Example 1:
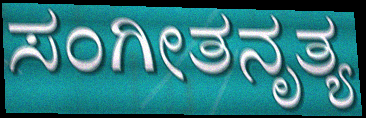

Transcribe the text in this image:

ಸಂಗೀತನೃತ್ಯ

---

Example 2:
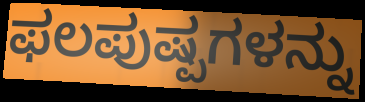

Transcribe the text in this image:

ಫಲಪುಷ್ಪಗಳನ್ನು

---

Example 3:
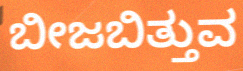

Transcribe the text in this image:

ಬೀಜಬಿತ್ತುವ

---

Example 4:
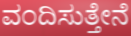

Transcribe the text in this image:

ವಂದಿಸುತ್ತೇನೆ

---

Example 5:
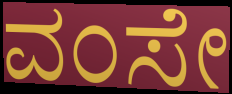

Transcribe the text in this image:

ವಂಸೇ